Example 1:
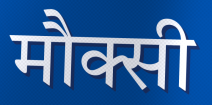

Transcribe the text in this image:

मौक्सी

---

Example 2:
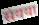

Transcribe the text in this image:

संयया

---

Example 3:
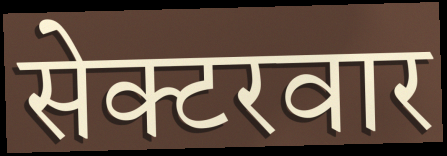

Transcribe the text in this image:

सेक्टरवार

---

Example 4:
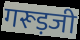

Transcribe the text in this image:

गरूड़जी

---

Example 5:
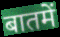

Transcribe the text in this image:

बातमें